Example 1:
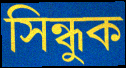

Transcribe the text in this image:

সিন্ধুক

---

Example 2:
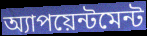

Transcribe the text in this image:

অ্যাপয়েন্টমেন্ট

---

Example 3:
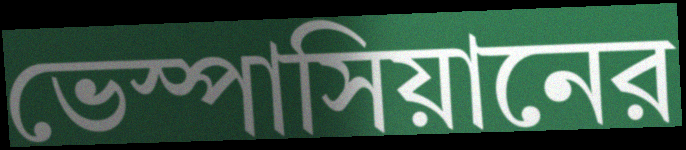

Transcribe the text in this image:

ভেস্পাসিয়ানের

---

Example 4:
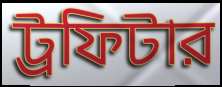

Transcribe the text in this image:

ট্রফিটার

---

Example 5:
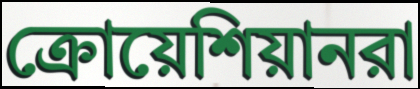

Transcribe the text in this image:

ক্রোয়েশিয়ানরা